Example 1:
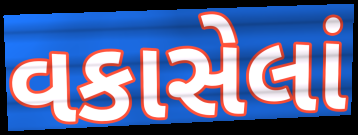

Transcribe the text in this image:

વકાસેલાં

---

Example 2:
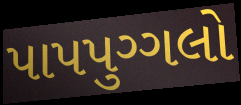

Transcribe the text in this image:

પાપપુગ્ગલો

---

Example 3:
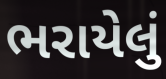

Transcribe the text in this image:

ભરાયેલું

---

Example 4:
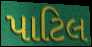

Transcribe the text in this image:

પાટિલ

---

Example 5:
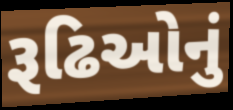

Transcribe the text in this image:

રૂઢિઓનું